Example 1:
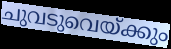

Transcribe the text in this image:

ചുവടുവെയ്ക്കും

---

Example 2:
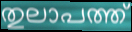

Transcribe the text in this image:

തുലാപത്ത്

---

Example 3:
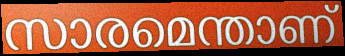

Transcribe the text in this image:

സാരമെന്താണ്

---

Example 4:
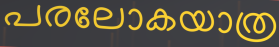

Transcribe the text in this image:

പരലോകയാത്ര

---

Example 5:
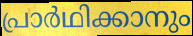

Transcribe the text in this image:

പ്രാർഥിക്കാനും